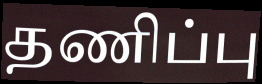
தணிப்பு